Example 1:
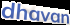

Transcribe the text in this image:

dhavan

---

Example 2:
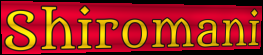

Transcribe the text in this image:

Shiromani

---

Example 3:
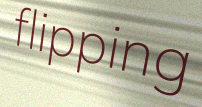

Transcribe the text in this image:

flipping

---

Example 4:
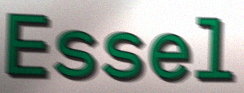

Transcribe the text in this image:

Essel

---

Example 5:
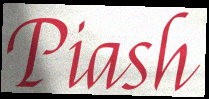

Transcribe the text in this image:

Piash